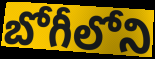
బోగీలోని